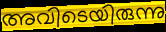
അവിടെയിരുന്നു